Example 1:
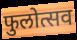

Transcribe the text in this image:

फुलोत्सव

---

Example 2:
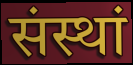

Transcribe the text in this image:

संस्थां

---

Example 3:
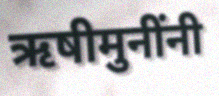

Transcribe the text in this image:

ऋषीमुनींनी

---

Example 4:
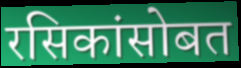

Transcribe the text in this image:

रसिकांसोबत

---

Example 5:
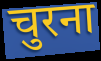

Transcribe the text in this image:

चुरना